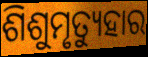
ଶିଶୁମୃତ୍ୟୁହାର